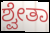
ಶ್ವೇತಾ